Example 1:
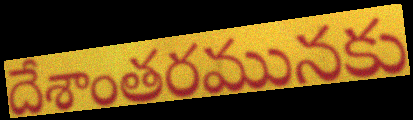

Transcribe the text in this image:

దేశాంతరమునకు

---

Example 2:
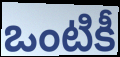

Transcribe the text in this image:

ఒంటికీ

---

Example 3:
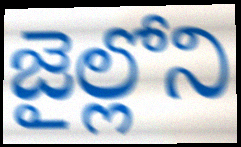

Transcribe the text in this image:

జైల్లోని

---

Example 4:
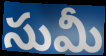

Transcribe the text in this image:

సుమీ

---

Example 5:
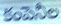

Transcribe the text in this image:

కంపెనీల